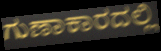
ಗುಣಾಕಾರದಲ್ಲಿ